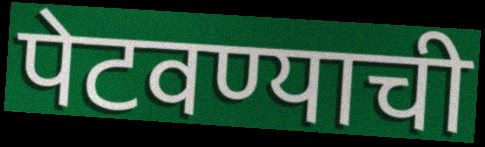
पेटवण्याची